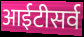
आईटीसर्व